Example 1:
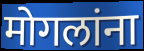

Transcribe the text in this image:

मोगलांना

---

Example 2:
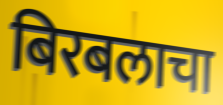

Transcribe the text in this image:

बिरबलाचा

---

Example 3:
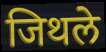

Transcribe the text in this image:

जिथले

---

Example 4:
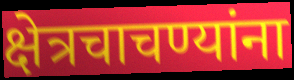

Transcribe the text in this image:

क्षेत्रचाचण्यांना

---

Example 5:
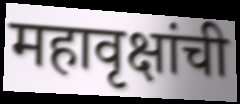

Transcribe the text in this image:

महावृक्षांची